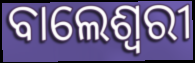
ବାଲେଶ୍ଵରୀ